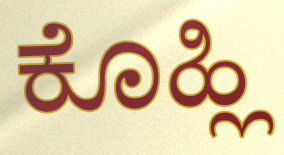
ಕೊಹ್ಲಿ